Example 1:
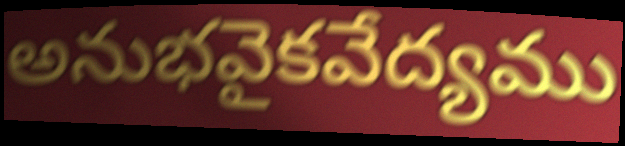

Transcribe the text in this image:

అనుభవైకవేద్యము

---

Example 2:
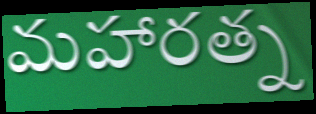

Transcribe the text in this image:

మహారత్న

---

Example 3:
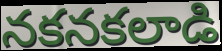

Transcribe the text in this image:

నకనకలాడి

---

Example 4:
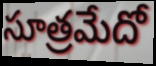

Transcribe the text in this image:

సూత్రమేదో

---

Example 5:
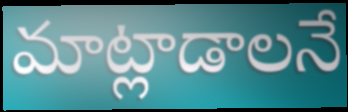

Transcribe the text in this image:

మాట్లాడాలనే